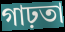
গাঢ়তা